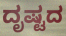
ದೃಷ್ಟದ